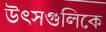
উৎসগুলিকে